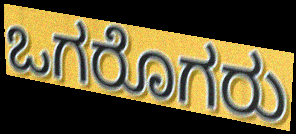
ಒಗರೊಗರು